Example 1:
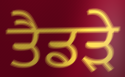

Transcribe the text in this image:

ਤੈਡੜੇ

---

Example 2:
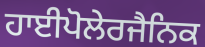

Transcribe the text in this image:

ਹਾਈਪੋਲੇਰਜੈਨਿਕ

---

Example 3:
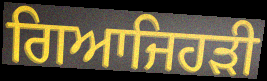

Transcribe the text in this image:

ਗਿਆਜਿਹੜੀ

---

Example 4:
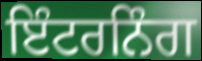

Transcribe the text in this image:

ਇੰਟਰਨਿੰਗ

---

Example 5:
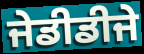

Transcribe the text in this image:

ਜੇਡੀਡੀਜੇ